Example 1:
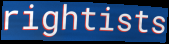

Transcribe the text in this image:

rightists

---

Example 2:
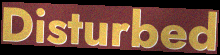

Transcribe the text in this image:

Disturbed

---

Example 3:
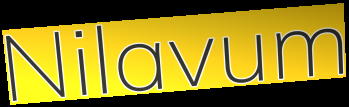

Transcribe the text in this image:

Nilavum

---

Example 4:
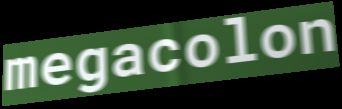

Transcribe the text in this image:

megacolon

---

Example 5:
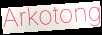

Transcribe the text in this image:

Arkotong